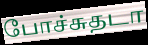
போச்சுதடா